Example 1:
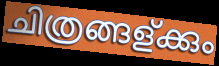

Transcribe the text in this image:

ചിത്രങ്ങള്ക്കും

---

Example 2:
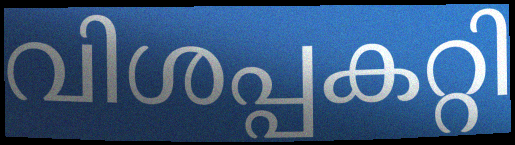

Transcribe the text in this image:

വിശപ്പകറ്റി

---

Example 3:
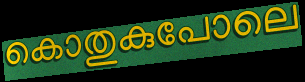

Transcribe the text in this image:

കൊതുകുപോലെ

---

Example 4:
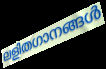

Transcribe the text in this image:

ലളിതഗാനങ്ങൾ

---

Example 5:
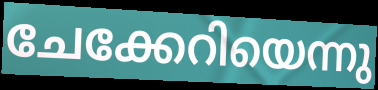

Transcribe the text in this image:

ചേക്കേറിയെന്നു